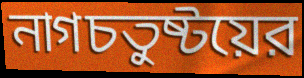
নাগচতুষ্টয়ের